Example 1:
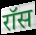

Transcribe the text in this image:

रॉस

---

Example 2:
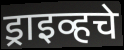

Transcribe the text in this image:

ड्राइव्हचे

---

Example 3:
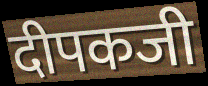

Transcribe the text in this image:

दीपकजी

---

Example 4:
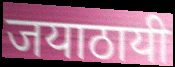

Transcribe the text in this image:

जयाठायी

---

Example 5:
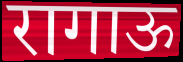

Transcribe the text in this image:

रागाऊ